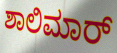
ಶಾಲಿಮಾರ್